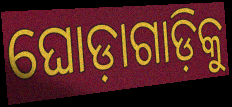
ଘୋଡ଼ାଗାଡ଼ିକୁ